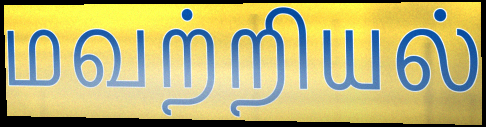
மவற்றியல்